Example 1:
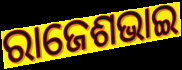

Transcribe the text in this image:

ରାଜେଶଭାଇ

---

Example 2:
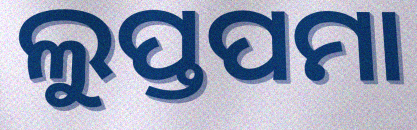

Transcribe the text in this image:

ଲୁପ୍ତପମା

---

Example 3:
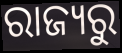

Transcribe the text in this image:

ରାଜ୍ୟରୁ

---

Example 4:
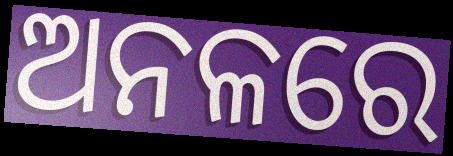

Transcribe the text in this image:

ଅନଳରେ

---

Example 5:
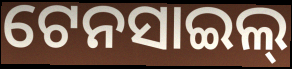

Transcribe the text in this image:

ଟେନସାଇଲ୍